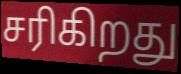
சரிகிறது